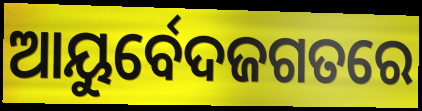
ଆୟୁର୍ବେଦଜଗତରେ